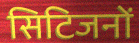
सिटिजनों